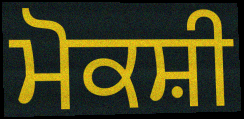
ਮੋਕਸ਼ੀ